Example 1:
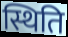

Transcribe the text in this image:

स्थिति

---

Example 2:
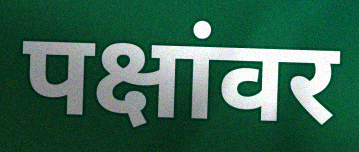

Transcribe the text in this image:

पक्षांवर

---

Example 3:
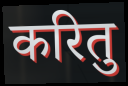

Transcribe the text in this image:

करितु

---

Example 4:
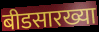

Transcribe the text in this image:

बीडसारख्या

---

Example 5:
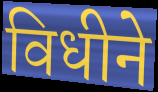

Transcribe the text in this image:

विधीने